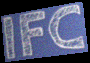
IFC